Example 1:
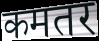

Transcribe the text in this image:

कमतर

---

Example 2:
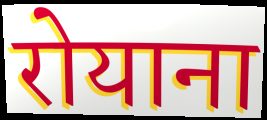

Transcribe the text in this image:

रोयाना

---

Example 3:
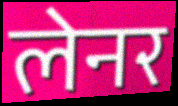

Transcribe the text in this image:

लेनर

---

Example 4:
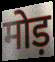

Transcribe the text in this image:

मोड़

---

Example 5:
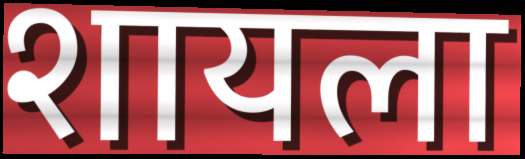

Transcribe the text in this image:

शायला